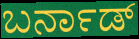
ಬರ್ನಾಡ್